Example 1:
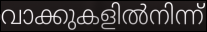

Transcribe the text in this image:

വാക്കുകളിൽനിന്ന്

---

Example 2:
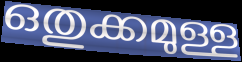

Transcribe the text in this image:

ഒതുക്കമുള്ള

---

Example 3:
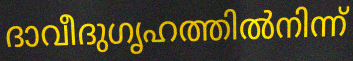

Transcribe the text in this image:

ദാവീദുഗൃഹത്തിൽനിന്ന്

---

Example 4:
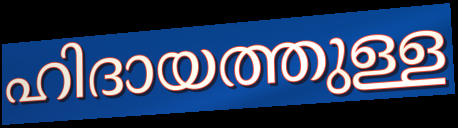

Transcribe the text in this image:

ഹിദായത്തുള്ള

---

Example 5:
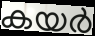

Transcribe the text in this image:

കയർ